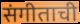
संगीताची